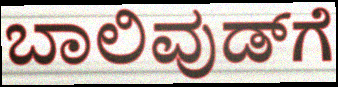
ಬಾಲಿವುಡ್‌ಗೆ